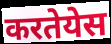
करतेयेस